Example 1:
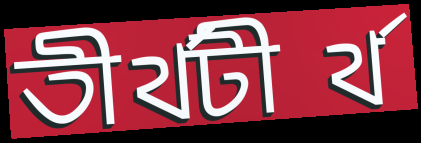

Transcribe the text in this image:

তীর্থটীর্থ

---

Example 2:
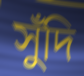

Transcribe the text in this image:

সুঁদি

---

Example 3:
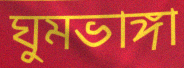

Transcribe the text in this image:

ঘুমভাঙ্গা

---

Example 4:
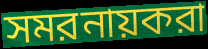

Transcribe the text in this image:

সমরনায়করা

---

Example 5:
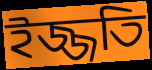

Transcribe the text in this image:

ইজ্জতি